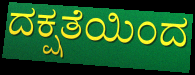
ದಕ್ಷತೆಯಿಂದ